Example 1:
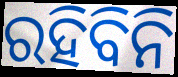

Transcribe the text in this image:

ରହିବିନି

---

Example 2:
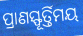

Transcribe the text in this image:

ପ୍ରାଣସ୍ଫୂର୍ତ୍ତିମୟ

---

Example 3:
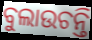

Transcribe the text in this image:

ବୁଲାଉଚନ୍ତି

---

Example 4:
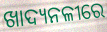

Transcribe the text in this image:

ଖାଦ୍ୟନଳୀରେ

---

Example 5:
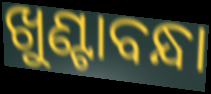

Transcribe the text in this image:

ଖୁଣ୍ଟାବନ୍ଧା